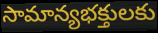
సామాన్యభక్తులకు